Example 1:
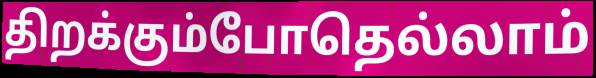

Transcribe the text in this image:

திறக்கும்போதெல்லாம்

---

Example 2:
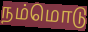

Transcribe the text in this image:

நம்மொடு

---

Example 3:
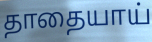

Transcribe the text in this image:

தாதையாய்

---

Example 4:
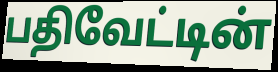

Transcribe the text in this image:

பதிவேட்டின்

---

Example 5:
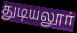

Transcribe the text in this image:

துடியலூர்